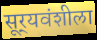
सूर्यवंशीला